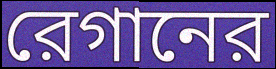
রেগানের